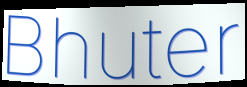
Bhuter